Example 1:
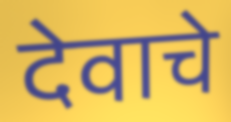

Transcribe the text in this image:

देवाचे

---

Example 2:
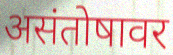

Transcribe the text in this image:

असंतोषावर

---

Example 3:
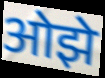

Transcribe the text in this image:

ओझे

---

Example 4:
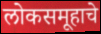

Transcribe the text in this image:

लोकसमूहाचे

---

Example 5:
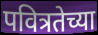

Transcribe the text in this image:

पवित्रतेच्या